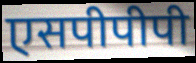
एसपीपीपी